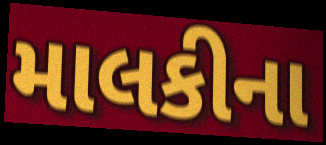
માલકીના